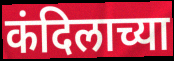
कंदिलाच्या